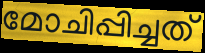
മോചിപ്പിച്ചത്